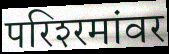
परिश्रमांवर